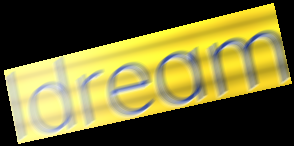
Idream